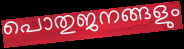
പൊതുജനങ്ങളും